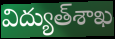
విద్యుత్‌శాఖ